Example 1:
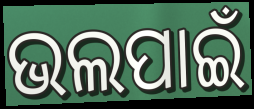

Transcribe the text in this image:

ଭଲପାଇଁ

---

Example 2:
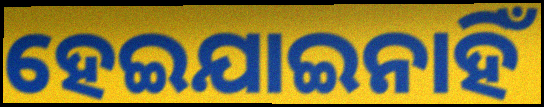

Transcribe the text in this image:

ହେଇଯାଇନାହିଁ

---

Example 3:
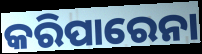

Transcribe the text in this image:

କରିପାରେନା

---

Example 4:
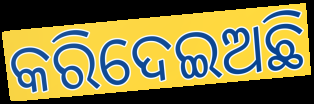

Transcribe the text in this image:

କରିଦେଇଅଛି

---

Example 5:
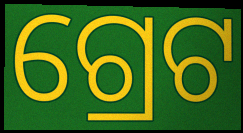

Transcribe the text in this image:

ଗ୍ରେଟ